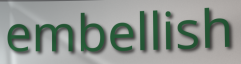
embellish